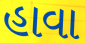
હાવા